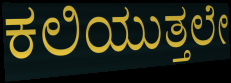
ಕಲಿಯುತ್ತಲೇ